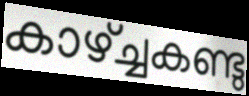
കാഴ്ച്ചകണ്ടു